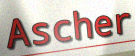
Ascher